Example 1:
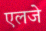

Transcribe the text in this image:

एलजे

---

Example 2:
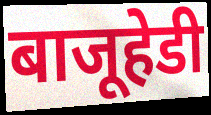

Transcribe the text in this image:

बाजूहेडी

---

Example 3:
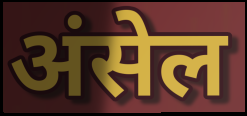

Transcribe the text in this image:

अंसेल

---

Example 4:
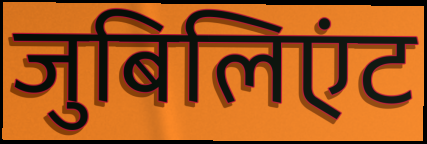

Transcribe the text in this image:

जुबिलिएंट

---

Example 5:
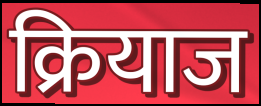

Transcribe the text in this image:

क्रियाज